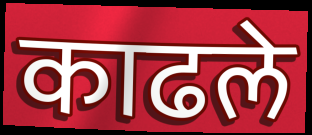
काढले